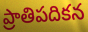
ప్రాతిపదికన